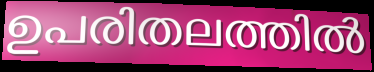
ഉപരിതലത്തിൽ